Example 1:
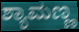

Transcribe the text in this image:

ಶ್ಯಾಮಣ್ಣ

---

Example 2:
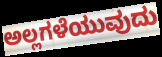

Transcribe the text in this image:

ಅಲ್ಲಗಳೆಯುವುದು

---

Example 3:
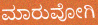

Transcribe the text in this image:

ಮಾರುವೋಗಿ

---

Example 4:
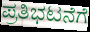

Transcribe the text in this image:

ಪ್ರತಿಭಟನೆಗೆ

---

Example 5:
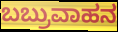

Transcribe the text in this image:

ಬಬ್ರುವಾಹನ